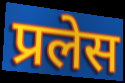
प्रलेस